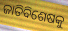
ଜାତିବିଶେଷକୁ